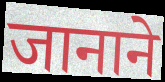
जानाने